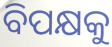
ବିପକ୍ଷକୁ